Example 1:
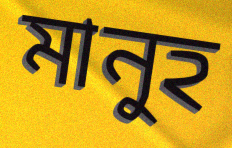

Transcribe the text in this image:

মানুহ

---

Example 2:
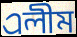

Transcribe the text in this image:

এলীম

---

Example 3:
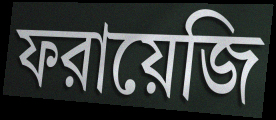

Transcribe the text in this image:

ফরায়েজি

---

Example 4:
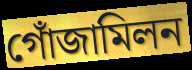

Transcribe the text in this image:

গোঁজামিলন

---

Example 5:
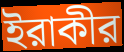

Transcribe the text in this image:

ইরাকীর